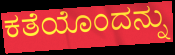
ಕತೆಯೊಂದನ್ನು